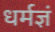
धर्मज्ञं